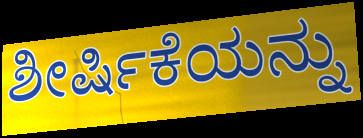
ಶೀರ್ಷಿಕೆಯನ್ನು